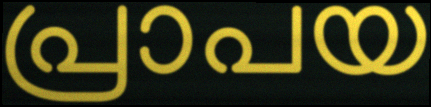
പ്രാപയ